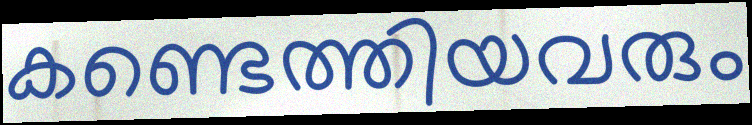
കണ്ടെത്തിയവരും